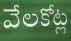
వేలకోట్ల